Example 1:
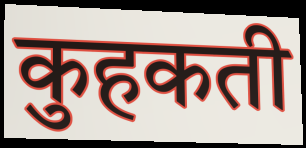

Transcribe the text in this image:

कुहकती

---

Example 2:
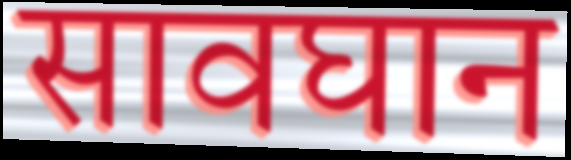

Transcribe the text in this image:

सावघान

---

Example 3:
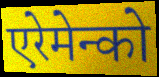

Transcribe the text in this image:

एरेमेन्को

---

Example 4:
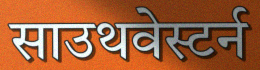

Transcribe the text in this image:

साउथवेस्टर्न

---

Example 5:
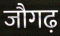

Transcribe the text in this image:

जौगढ़